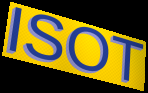
ISOT